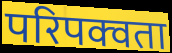
परिपक्‍वता